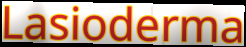
Lasioderma